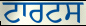
ਟਾਰਟਸ